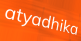
atyadhika